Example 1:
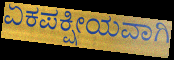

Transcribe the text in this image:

ಏಕಪಕ್ಷೀಯವಾಗಿ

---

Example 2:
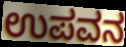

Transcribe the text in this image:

ಉಪವನ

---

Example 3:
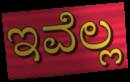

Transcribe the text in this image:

ಇವೆಲ್ಲ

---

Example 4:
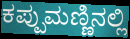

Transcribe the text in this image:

ಕಪ್ಪುಮಣ್ಣಿನಲ್ಲಿ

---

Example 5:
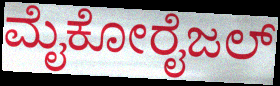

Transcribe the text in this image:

ಮೈಕೋರೈಜಲ್